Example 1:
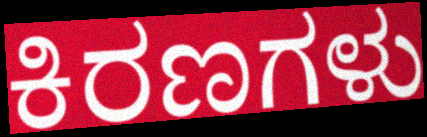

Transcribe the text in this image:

ಕಿರಣಗಳು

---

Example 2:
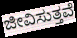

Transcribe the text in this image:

ಜೀವಿಸುತ್ತವೆ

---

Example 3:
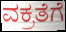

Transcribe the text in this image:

ವಕ್ರತೆಗೆ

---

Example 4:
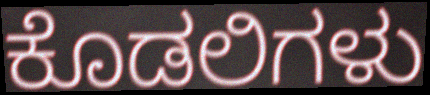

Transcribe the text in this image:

ಕೊಡಲಿಗಳು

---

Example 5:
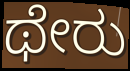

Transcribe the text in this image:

ಥೇರು